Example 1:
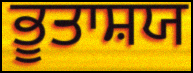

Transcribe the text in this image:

ਭੂਤਾਸ਼ਯ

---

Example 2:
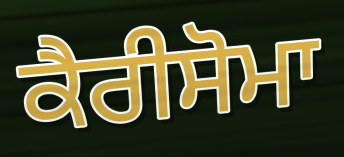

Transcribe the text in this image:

ਕੈਰੀਸੋਮਾ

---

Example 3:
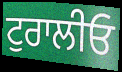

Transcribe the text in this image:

ਟੁਰਾਲੀਓ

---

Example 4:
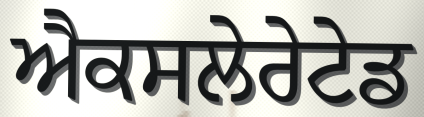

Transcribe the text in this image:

ਐਕਸਲੇਰੇਟੇਡ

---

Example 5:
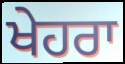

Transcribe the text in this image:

ਖੇਹਰਾ